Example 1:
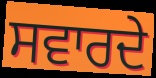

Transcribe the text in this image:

ਸਵਾਰਦੇ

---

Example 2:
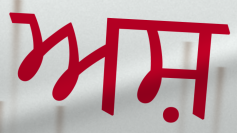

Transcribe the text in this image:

ਅਸ਼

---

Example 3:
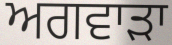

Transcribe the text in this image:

ਅਗਵਾੜਾ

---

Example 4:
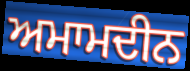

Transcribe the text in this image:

ਅਮਾਮਦੀਨ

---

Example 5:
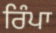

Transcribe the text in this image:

ਰਿੰਪਾ